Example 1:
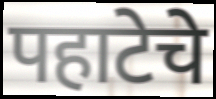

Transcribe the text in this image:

पहाटेचे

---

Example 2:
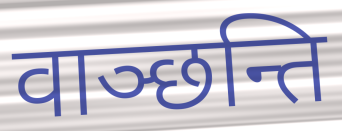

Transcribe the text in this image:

वाञ्छन्ति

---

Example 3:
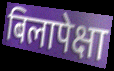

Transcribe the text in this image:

बिलापेक्षा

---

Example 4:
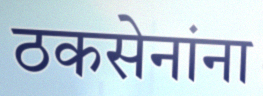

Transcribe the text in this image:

ठकसेनांना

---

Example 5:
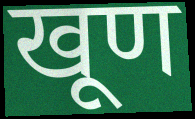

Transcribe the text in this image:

खूण